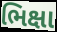
ભિક્ષા